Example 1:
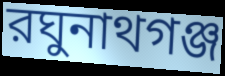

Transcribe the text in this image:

রঘুনাথগঞ্জ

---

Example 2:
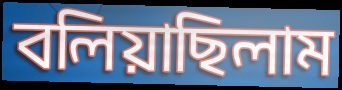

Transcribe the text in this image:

বলিয়াছিলাম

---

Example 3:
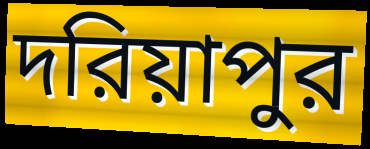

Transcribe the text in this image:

দরিয়াপুর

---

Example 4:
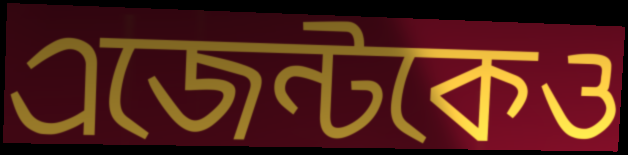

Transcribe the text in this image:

এজেন্টকেও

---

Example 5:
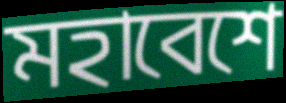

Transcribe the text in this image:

মহাবেশে